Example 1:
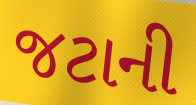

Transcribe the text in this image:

જટાની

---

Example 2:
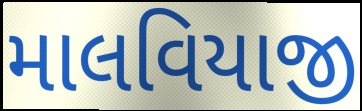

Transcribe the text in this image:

માલવિયાજી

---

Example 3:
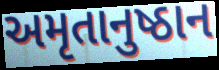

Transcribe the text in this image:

અમૃતાનુષ્ઠાન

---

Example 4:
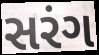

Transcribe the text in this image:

સરંગ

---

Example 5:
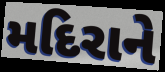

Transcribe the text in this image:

મદિરાને